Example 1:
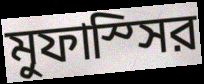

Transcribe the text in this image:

মুফাস্সির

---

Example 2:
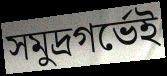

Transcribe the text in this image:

সমুদ্রগর্ভেই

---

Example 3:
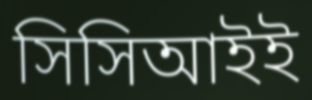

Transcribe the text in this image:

সিসিআইই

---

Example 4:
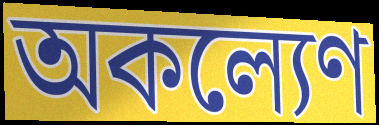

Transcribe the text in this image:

অকল্যেণ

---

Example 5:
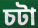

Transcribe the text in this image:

চটা